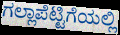
ಗಲ್ಲಾಪೆಟ್ಟಿಗೆಯಲ್ಲಿ